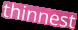
thinnest